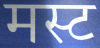
मस्ट